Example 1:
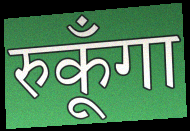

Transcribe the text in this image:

रुकूँगा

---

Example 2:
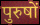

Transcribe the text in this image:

पुरुषों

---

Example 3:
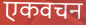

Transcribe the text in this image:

एकवचन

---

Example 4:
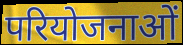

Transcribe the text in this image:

परियोजनाओं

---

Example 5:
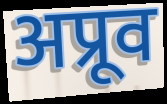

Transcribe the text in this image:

अप्रूव